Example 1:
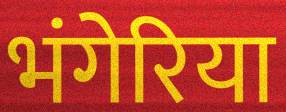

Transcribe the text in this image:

भंगेरिया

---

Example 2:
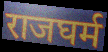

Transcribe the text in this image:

राजघर्म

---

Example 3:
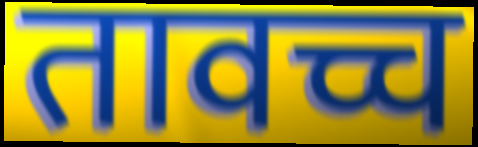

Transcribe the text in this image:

तावच्च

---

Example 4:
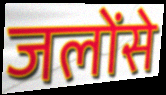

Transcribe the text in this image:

जलोंसे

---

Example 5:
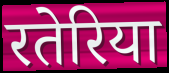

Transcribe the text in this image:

रतेरिया